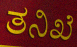
ತನಿಖೆ